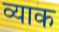
व्याक